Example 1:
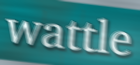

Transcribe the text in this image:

wattle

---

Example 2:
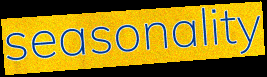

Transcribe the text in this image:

seasonality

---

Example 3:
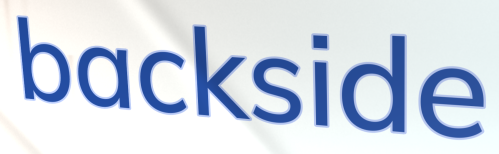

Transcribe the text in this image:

backside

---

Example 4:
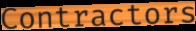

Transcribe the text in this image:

Contractors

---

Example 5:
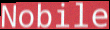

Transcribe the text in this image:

Nobile